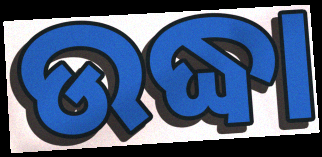
ଉଦ୍ଧା